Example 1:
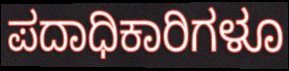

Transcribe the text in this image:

ಪದಾಧಿಕಾರಿಗಳೂ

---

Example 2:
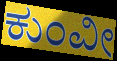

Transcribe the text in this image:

ಕುಂವೀ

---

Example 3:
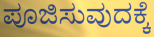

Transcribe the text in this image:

ಪೂಜಿಸುವುದಕ್ಕೆ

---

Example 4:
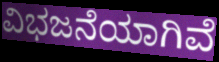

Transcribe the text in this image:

ವಿಭಜನೆಯಾಗಿವೆ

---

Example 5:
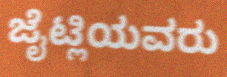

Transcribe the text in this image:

ಜೈಟ್ಲಿಯವರು